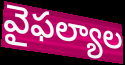
వైఫల్యాల